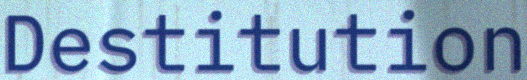
Destitution